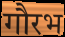
गौरभ